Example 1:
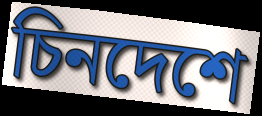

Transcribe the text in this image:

চিনদেশে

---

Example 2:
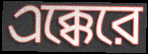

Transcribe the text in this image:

এক্কেরে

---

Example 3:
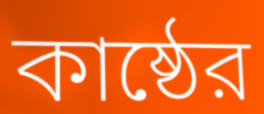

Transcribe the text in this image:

কাষ্ঠের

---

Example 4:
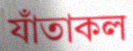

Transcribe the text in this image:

যাঁতাকল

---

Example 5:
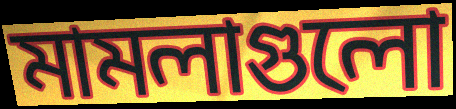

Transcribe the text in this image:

মামলাগুলো